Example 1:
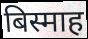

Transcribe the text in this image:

बिस्माह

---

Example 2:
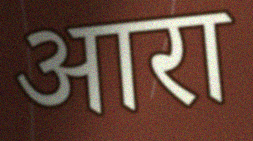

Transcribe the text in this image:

आरा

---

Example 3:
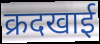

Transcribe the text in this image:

क्रदखाई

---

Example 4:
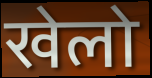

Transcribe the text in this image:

खेलो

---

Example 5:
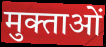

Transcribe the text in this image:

मुक्ताओं